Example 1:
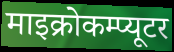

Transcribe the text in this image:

माइक्रोकम्प्यूटर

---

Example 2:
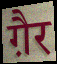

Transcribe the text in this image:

ग़ैर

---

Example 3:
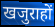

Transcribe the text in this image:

खजुराहों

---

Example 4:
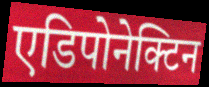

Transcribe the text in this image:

एडिपोनेक्टिन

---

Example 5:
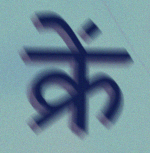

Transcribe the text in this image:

क्रें